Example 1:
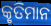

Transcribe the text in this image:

କୃତିମାନ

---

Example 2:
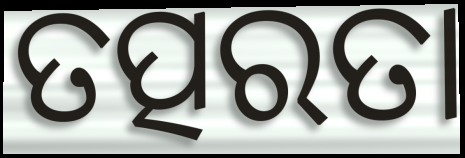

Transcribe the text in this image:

ତତ୍ପରତା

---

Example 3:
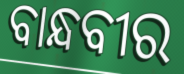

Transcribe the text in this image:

ବାନ୍ଧବୀର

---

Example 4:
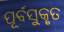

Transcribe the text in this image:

ପୂର୍ବସୁକୃତ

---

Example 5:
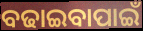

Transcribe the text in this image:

ବଢାଇବାପାଇଁ